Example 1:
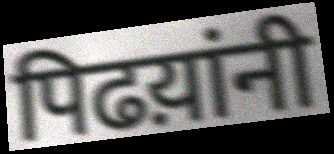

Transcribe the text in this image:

पिढय़ांनी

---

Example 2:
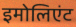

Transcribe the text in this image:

इमोलिएंट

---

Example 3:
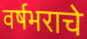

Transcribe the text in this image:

वर्षभराचे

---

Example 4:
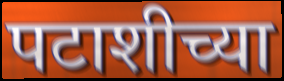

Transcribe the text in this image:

पटाशीच्या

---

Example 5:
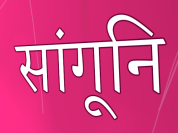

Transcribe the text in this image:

सांगूनि